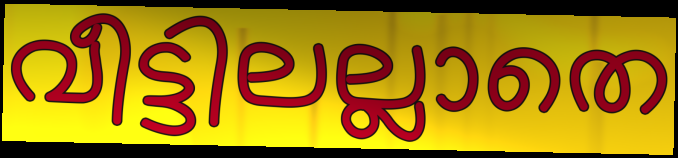
വീട്ടിലല്ലാതെ